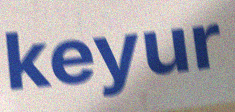
keyur